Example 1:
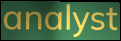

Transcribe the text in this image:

analyst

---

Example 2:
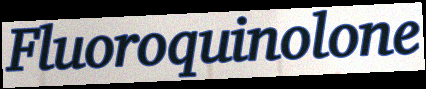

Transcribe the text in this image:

Fluoroquinolone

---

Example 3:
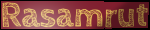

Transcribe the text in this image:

Rasamrut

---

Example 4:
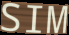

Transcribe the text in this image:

SIM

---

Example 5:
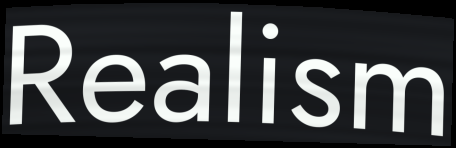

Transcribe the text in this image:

Realism